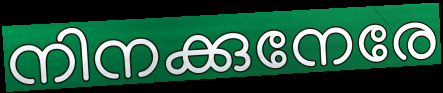
നിനക്കുനേരേ